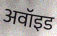
अवॉइड